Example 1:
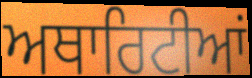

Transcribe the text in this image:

ਅਥਾਰਿਟੀਆਂ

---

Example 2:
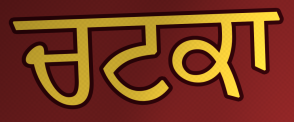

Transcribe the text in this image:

ਚਟਕਾ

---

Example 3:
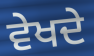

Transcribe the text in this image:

ਵੇਖਦੇ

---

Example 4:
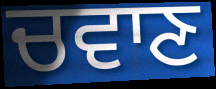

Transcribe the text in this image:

ਚਵਾਣ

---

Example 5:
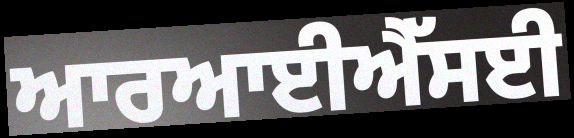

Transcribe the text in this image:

ਆਰਆਈਐੱਸਈ